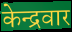
केन्द्रवार